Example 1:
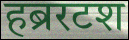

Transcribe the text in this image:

हब्ररटश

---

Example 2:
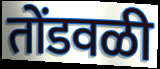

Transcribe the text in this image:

तोंडवळी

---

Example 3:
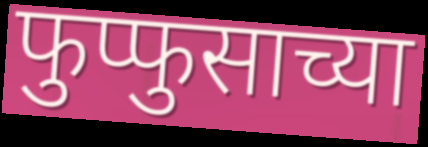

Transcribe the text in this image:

फुप्फुसाच्या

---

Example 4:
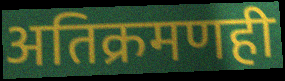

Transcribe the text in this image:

अतिक्रमणही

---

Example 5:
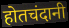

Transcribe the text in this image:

होतचंदानी